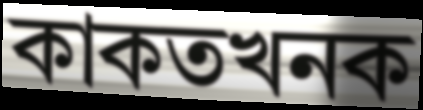
কাকতখনক